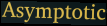
Asymptotic